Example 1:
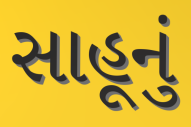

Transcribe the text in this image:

સાહૂનું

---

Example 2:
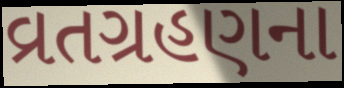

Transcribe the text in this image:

વ્રતગ્રહણના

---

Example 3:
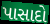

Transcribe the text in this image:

પાસાદો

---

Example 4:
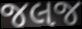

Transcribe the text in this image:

જલજ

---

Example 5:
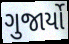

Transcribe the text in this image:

ગુજાર્યો